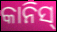
କାନିସ୍